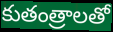
కుతంత్రాలతో